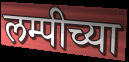
लम्पीच्या